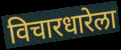
विचारधारेला